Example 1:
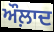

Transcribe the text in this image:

ਔਲ਼ਾਦ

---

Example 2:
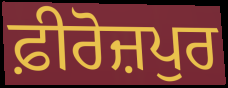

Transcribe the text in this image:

ਫ਼ੀਰੋਜ਼ਪੁਰ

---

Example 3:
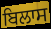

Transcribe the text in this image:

ਬਿਲਾਸ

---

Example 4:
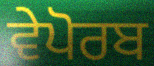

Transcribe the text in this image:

ਵੇਪੋਰਬ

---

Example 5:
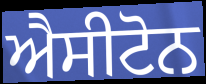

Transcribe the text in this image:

ਐਸੀਟੋਨ